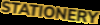
STATIONERY